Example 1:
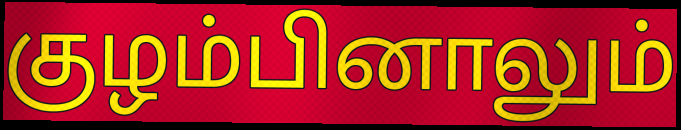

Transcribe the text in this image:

குழம்பினாலும்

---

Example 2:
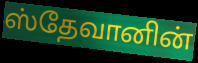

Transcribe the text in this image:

ஸ்தேவானின்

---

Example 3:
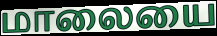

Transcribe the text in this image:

மாலையை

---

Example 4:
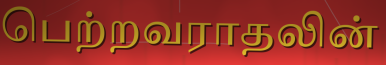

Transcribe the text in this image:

பெற்றவராதலின்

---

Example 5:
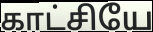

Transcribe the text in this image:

காட்சியே